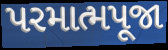
પરમાત્મપૂજા